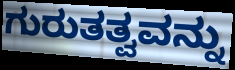
ಗುರುತತ್ವವನ್ನು